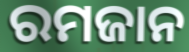
ରମଜାନ